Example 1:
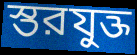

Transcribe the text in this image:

স্তরযুক্ত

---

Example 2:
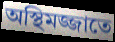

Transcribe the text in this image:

অস্থিমজ্জাতে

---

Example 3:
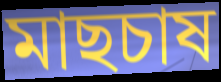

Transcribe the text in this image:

মাছচাষ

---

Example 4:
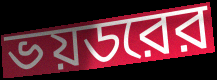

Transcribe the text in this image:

ভয়ডরের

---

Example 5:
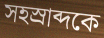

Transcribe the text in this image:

সহস্রাব্দকে